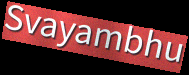
Svayambhu